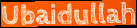
Ubaidullah